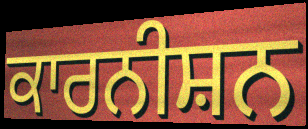
ਕਾਰਨੀਸ਼ਨ